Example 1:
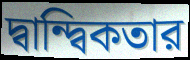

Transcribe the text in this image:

দ্বান্দ্বিকতার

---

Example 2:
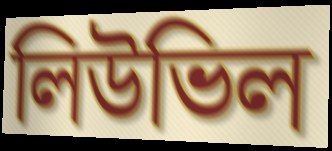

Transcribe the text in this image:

লিউভিল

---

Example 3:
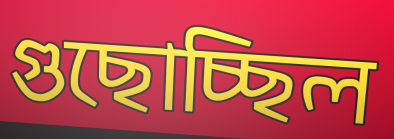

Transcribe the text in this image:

গুছোচ্ছিল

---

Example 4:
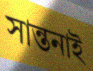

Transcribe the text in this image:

সান্তনাই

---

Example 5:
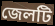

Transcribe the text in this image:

জেলটি